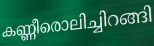
കണ്ണീരൊലിച്ചിറങ്ങി